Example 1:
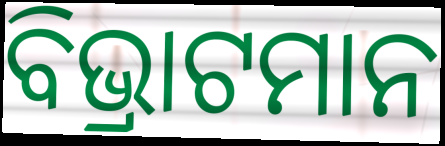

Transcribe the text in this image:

ବିଭ୍ରାଟମାନ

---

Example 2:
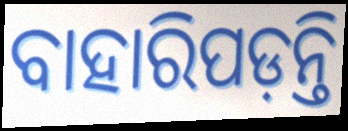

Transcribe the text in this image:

ବାହାରିପଡ଼ନ୍ତି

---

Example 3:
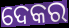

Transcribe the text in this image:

ଦେକର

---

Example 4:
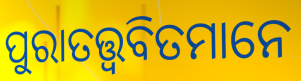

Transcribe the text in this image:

ପୁରାତତ୍ତ୍ୱବିତମାନେ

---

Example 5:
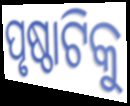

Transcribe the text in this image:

ପୃଷ୍ଠାଟିକୁ